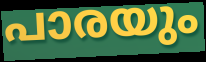
പാരയും